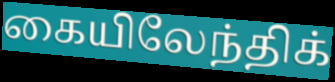
கையிலேந்திக்